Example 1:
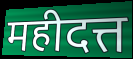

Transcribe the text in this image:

महीदत्त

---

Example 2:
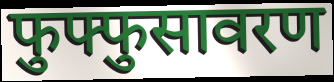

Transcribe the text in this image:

फुफ्फुसावरण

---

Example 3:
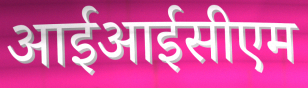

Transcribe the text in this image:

आईआईसीएम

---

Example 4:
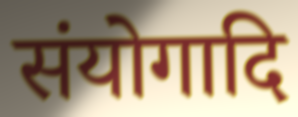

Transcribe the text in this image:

संयोगादि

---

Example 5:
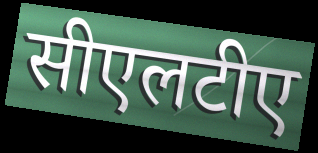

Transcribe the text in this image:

सीएलटीए